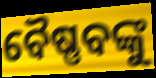
ବୈଷ୍ଣବଙ୍କୁ